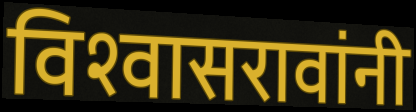
विश्वासरावांनी